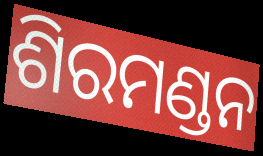
ଶିରମଣ୍ଡନ